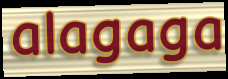
alagaga